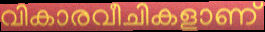
വികാരവീചികളാണ്